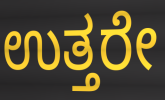
ಉತ್ತರೇ